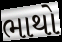
ભાથો